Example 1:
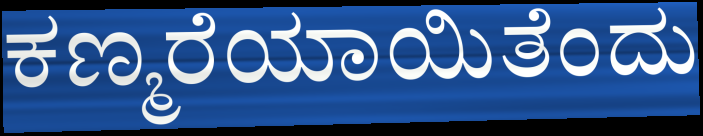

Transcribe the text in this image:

ಕಣ್ಮರೆಯಾಯಿತೆಂದು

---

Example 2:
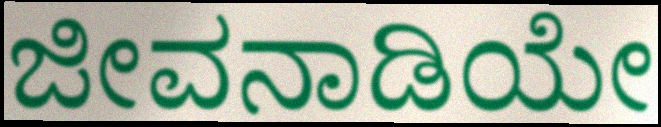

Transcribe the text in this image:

ಜೀವನಾಡಿಯೇ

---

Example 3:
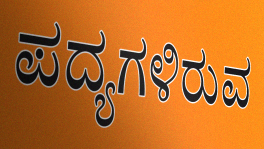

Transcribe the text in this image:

ಪದ್ಯಗಳಿರುವ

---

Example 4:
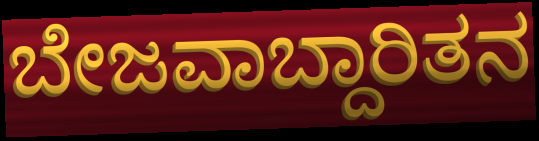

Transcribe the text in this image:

ಬೇಜವಾಬ್ದಾರಿತನ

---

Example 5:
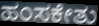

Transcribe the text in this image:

ಹಂಸಕೇತು